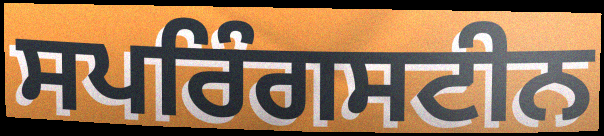
ਸਪਰਿੰਗਸਟੀਨ